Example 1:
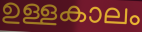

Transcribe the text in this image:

ഉള്ളകാലം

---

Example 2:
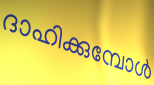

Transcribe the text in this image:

ദാഹിക്കുമ്പോൾ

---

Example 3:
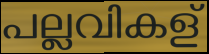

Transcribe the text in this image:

പല്ലവികള്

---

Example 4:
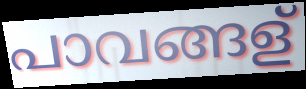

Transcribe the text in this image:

പാവങ്ങള്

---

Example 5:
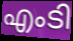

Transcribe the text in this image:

എംടി